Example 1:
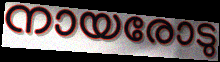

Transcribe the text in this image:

നായരോടു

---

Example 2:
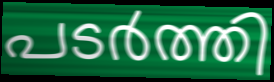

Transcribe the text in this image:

പടർത്തി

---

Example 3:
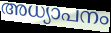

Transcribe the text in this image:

അധ്യാപനം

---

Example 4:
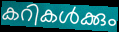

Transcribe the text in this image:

കറികൾക്കും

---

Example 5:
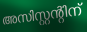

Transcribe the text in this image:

അസിസ്റ്റന്റിന്